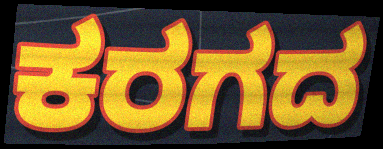
ಕರಗದ